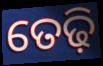
ତେଢ଼ି